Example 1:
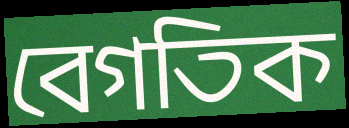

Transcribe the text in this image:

বেগতিক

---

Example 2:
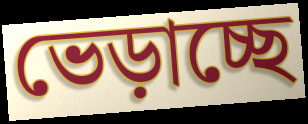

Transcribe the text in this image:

ভেড়াচ্ছে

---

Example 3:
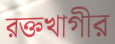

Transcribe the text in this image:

রক্তখাগীর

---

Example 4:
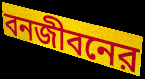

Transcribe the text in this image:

বনজীবনের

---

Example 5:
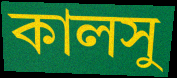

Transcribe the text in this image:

কালসু